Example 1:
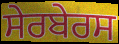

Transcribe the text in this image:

ਸੇਰਬੇਰਸ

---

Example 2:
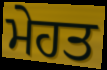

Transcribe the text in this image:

ਮੇਹਤ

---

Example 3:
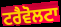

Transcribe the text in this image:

ਟਰੈਵੋਲਟਾ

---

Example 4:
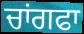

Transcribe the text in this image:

ਚਾਂਗਫਾ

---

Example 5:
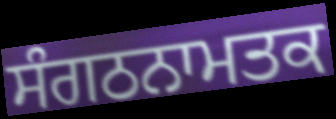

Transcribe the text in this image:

ਸੰਗਠਨਾਮਤਕ